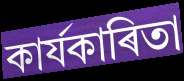
কাৰ্যকাৰিতা